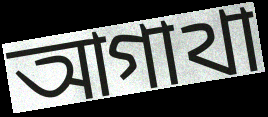
আগাথা